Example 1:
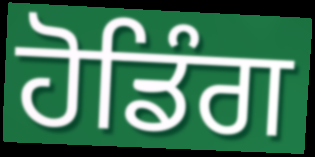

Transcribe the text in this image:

ਹੋਡਿੰਗ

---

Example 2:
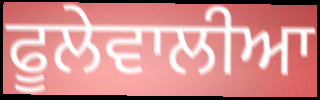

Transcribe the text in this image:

ਫੂਲੇਵਾਲੀਆ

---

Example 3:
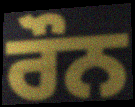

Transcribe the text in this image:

ਰੌਨ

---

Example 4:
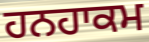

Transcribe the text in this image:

ਹਨਹਾਕਮ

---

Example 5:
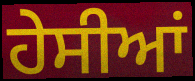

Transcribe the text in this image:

ਹੇਸੀਆਂ